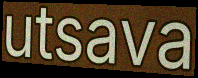
utsava